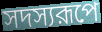
সদস্যরূপে